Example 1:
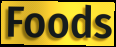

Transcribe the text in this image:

Foods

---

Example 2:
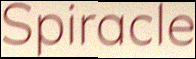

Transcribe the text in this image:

Spiracle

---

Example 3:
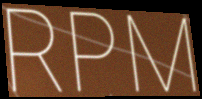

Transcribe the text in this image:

RPM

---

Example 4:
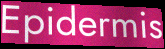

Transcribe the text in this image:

Epidermis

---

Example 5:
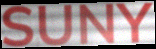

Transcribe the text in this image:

SUNY